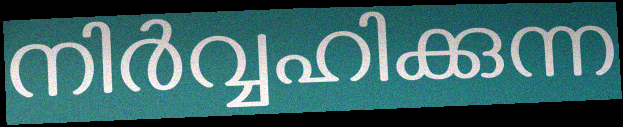
നിർവ്വഹിക്കുന്ന